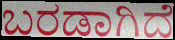
ಬರಡಾಗಿದೆ